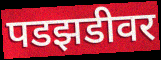
पडझडीवर